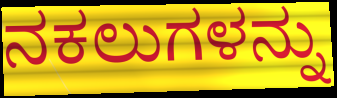
ನಕಲುಗಳನ್ನು